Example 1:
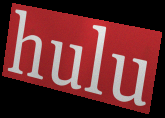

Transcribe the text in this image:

hulu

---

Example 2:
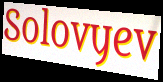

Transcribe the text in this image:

Solovyev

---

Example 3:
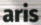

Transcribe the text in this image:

aris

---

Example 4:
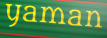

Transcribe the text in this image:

yaman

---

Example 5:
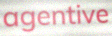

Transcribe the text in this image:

agentive